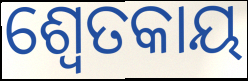
ଶ୍ବେତକାୟ